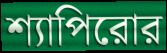
শ্যাপিরোর